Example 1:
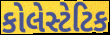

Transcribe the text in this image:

કોલેસ્ટેટિક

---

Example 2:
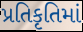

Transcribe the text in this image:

પ્રતિકૃતિમાં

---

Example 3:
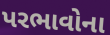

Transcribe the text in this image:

પરભાવોના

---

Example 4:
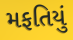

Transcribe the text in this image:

મફતિયું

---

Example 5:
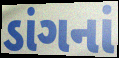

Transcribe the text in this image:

ડાંગનાં